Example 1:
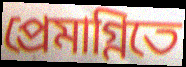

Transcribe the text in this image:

প্রেমাগ্নিতে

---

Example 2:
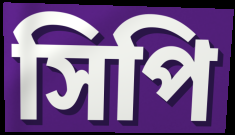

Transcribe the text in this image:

সিপি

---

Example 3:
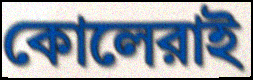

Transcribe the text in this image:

কোলেরাই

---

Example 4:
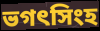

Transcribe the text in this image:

ভগৎসিংহ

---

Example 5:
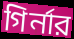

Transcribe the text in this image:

গির্নার